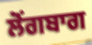
ਲੋਂਗਬਾਗ